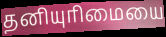
தனியுரிமையை